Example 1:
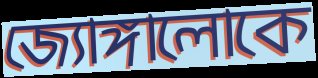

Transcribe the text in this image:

জ্যোঙ্গালোকে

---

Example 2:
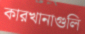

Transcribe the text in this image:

কারখানাগুলি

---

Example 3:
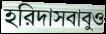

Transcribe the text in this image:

হরিদাসবাবুও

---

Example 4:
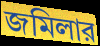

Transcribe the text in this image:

জমিলার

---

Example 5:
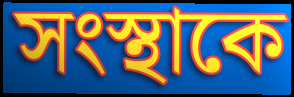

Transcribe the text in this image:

সংস্থাকে